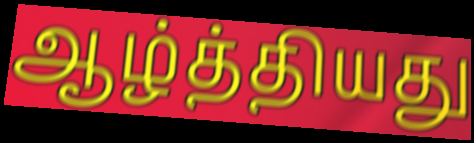
ஆழ்த்தியது